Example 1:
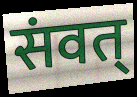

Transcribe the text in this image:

संवत्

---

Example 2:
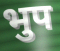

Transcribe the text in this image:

भुप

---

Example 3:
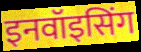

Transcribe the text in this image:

इनवॉइसिंग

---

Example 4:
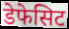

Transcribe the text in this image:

डेफेसिट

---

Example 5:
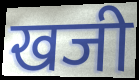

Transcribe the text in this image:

खजी